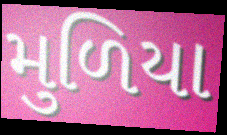
મુળિયા